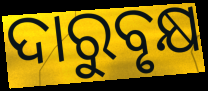
ଦାରୁବୃକ୍ଷ